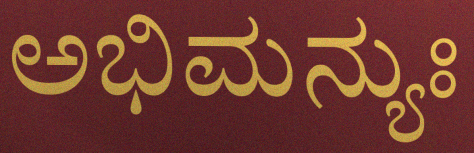
ಅಭಿಮನ್ಯುಃ